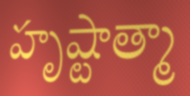
హృష్టాత్మా